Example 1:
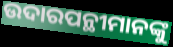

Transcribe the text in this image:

ଉଦାରପନ୍ଥୀମାନଙ୍କୁ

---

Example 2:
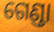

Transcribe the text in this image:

ଗେଣ୍ଡା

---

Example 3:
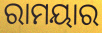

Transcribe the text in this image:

ରାମୟାର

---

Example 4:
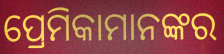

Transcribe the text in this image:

ପ୍ରେମିକାମାନଙ୍କର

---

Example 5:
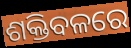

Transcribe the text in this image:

ଶକ୍ତିବଳରେ